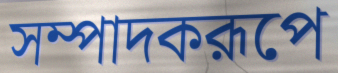
সম্পাদকরূপে